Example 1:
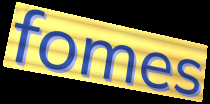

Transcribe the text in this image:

fomes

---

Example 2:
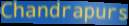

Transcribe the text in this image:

Chandrapurs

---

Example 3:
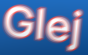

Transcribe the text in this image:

Glej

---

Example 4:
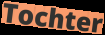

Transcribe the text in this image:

Tochter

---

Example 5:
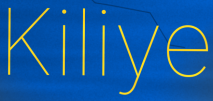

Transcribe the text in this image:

Kiliye